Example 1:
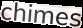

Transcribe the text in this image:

chimes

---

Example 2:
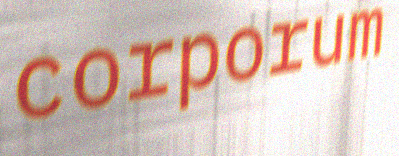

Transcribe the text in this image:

corporum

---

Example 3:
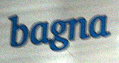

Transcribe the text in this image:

bagna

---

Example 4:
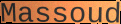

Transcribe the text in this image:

Massoud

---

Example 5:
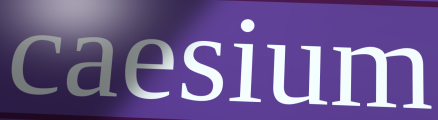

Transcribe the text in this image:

caesium